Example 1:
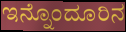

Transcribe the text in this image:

ಇನ್ನೊಂದೂರಿನ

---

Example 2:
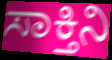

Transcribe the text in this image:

ಸಾಕ್ತಿನಿ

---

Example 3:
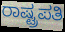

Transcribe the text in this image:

ರಾಷ್ಟ್ರಪತಿ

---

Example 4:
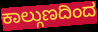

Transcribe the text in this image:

ಕಾಲ್ಗುಣದಿಂದ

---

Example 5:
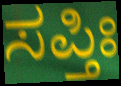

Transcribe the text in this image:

ಸಪ್ತಿಃ